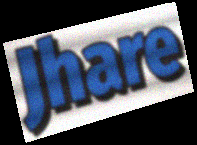
Jhare